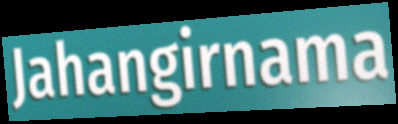
Jahangirnama